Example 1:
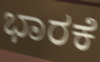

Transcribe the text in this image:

ಭಾರಕೆ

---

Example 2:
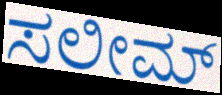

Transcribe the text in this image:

ಸಲೀಮ್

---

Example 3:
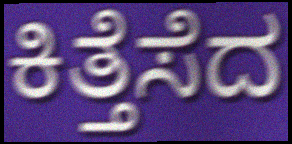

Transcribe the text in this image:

ಕಿತ್ತೆಸೆದ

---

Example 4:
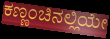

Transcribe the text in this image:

ಕಣ್ಣಂಚಿನಲ್ಲಿಯೇ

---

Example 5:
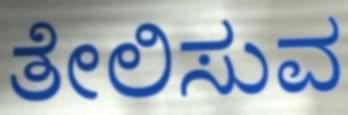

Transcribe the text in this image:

ತೇಲಿಸುವ